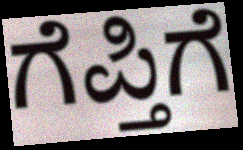
ಗೆಪ್ತಿಗೆ